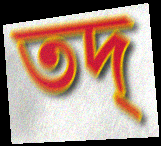
তদ্